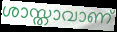
ശാസ്താവാണ്